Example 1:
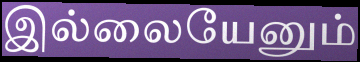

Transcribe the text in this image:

இல்லையேனும்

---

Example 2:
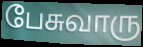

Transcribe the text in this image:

பேசுவாரு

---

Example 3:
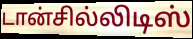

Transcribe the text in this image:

டான்சில்லிடிஸ்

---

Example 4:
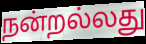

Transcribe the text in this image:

நன்றல்லது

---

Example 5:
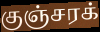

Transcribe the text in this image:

குஞ்சரக்